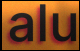
alu